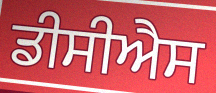
ਡੀਸੀਐਸ